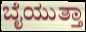
ಬೈಯುತ್ತಾ